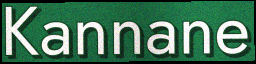
Kannane